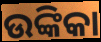
ଉଙ୍କିକା